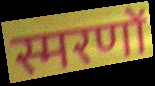
स्मरणों